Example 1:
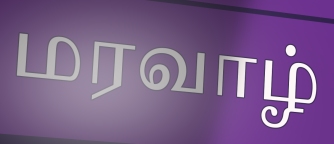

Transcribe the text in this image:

மரவாழ்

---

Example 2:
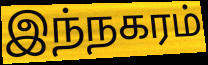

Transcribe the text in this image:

இந்நகரம்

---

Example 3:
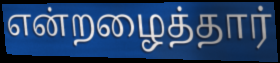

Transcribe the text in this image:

என்றழைத்தார்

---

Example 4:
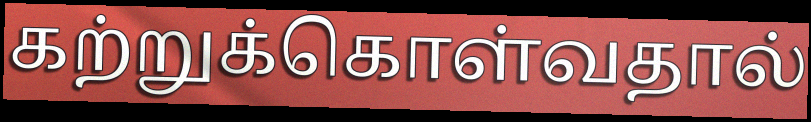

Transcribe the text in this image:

கற்றுக்கொள்வதால்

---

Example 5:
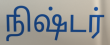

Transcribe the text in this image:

நிஷ்டர்